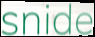
snide